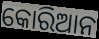
କୋରିଆନ